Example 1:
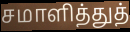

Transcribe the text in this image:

சமாளித்துத்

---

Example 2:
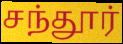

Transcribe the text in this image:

சந்தூர்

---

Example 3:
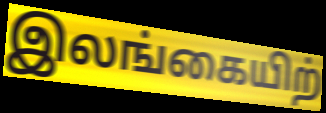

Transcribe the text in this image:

இலங்கையிற்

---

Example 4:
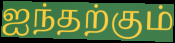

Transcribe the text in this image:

ஐந்தற்கும்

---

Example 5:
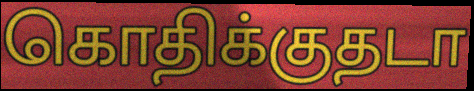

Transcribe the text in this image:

கொதிக்குதடா